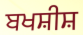
ਬਖਸ਼ੀਸ਼